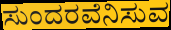
ಸುಂದರವೆನಿಸುವ